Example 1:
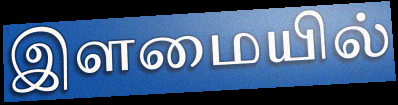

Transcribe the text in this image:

இளமையில்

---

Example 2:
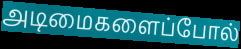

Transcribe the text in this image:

அடிமைகளைப்போல்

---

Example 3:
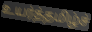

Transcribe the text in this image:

உயர்த்தமிழ்ச்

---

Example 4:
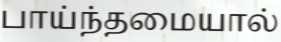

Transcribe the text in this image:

பாய்ந்தமையால்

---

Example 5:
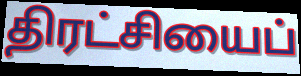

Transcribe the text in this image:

திரட்சியைப்